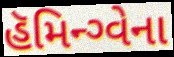
હૅમિન્ગ્વેના